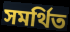
সমৰ্থিত